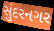
સુંદરનગર